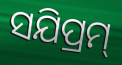
ସଯିପ୍ରମ୍